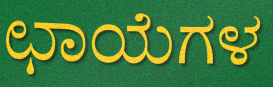
ಛಾಯೆಗಳ